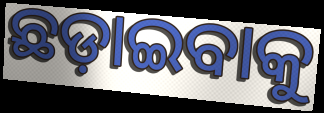
ଛଡ଼ାଇବାକୁ